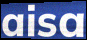
aisa